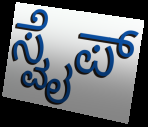
ಸ್ವೈಪ್